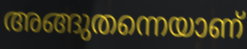
അങ്ങുതന്നെയാണ്